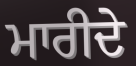
ਮਾਰੀਦੇ